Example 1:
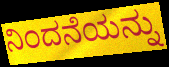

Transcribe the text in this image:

ನಿಂದನೆಯನ್ನು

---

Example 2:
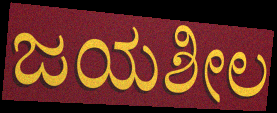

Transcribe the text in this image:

ಜಯಶೀಲ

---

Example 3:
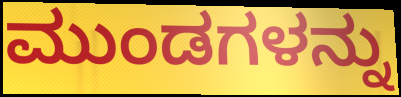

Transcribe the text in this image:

ಮುಂಡಗಳನ್ನು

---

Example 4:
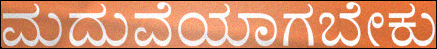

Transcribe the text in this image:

ಮದುವೆಯಾಗಬೇಕು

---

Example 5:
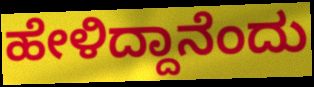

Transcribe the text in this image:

ಹೇಳಿದ್ದಾನೆಂದು